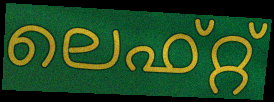
ലെഫ്റ്റ്